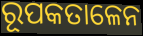
ରୂପକତାଳେନ